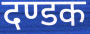
दण्डक